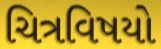
ચિત્રવિષયો